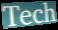
Tech